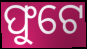
ଫୁଟେ